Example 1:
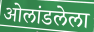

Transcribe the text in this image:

ओलांडलेला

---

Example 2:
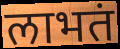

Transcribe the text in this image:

लाभतं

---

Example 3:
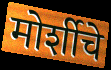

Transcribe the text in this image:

मोर्शीचे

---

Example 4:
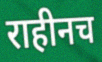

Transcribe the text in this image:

राहीनच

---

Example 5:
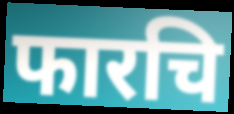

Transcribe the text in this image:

फारचि